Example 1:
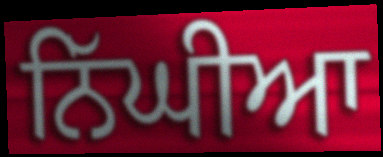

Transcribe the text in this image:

ਨਿੱਘੀਆ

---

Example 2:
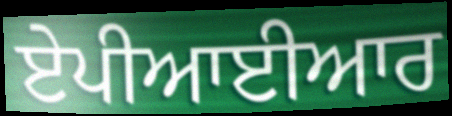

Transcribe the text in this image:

ਏਪੀਆਈਆਰ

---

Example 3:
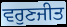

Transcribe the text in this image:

ਵਰੁਣਜੀਤ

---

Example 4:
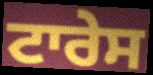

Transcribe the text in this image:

ਟਾਰੇਸ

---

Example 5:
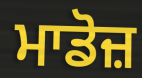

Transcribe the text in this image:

ਮਾਡੋਜ਼